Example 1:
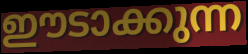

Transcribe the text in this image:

ഈടാക്കുന്ന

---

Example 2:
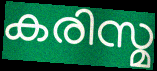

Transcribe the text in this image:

കരിസ്മ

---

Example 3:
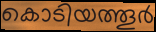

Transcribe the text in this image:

കൊടിയത്തൂർ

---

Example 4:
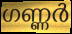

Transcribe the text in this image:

ഗണ്ണർ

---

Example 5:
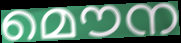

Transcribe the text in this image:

മൌന